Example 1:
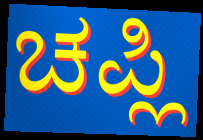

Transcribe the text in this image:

ಚಪ್ಲಿ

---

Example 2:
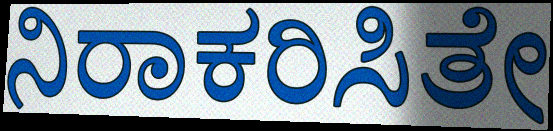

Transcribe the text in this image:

ನಿರಾಕರಿಸಿತೇ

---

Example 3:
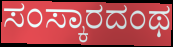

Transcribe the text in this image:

ಸಂಸ್ಕಾರದಂಥ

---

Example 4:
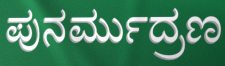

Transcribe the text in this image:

ಪುನರ್ಮುದ್ರಣ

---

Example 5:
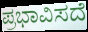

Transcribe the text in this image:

ಪ್ರಭಾವಿಸದೆ